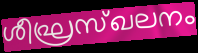
ശീഘ്രസ്ഖലനം